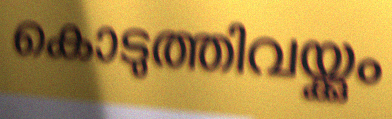
കൊടുത്തിവയ്ക്കും